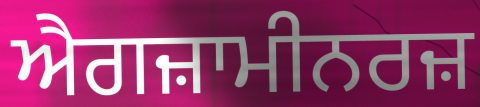
ਐਗਜ਼ਾਮੀਨਰਜ਼